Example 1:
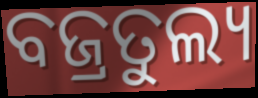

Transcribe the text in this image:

ବଜ୍ରତୁଲ୍ୟ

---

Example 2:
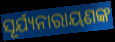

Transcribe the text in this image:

ସୂର୍ଯ୍ୟନାରାୟଣଙ୍କ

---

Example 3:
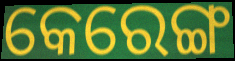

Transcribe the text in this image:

କେରେଙ୍ଗ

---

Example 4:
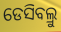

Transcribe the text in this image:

ଡେସିବଲ୍ରୁ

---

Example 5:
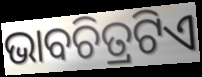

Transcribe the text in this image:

ଭାବଚିତ୍ରଟିଏ